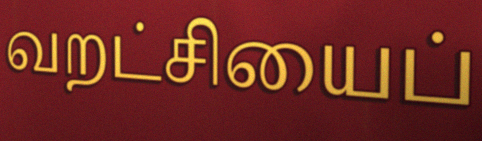
வறட்சியைப்